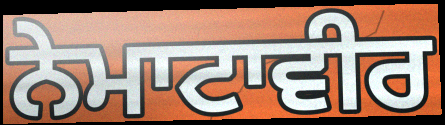
ਨੇਮਾਟਾਵੀਰ